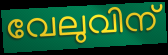
വേലുവിന്